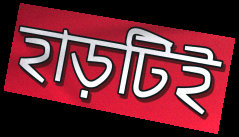
হাড়টিই